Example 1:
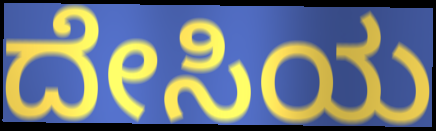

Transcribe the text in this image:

ದೇಸಿಯ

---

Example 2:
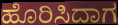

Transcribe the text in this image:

ಹೊರಿಸಿದಾಗ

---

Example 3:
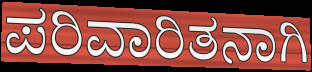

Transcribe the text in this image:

ಪರಿವಾರಿತನಾಗಿ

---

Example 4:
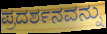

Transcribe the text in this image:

ಪ್ರದರ್ಶನವನ್ನು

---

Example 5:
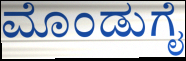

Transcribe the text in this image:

ಮೊಂಡುಗೈ